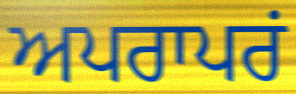
ਅਪਰਾਪਰਂ